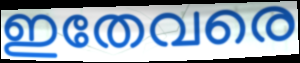
ഇതേവരെ